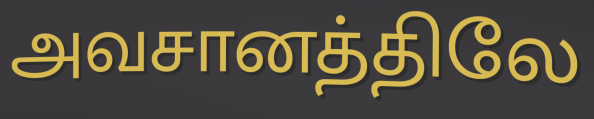
அவசானத்திலே